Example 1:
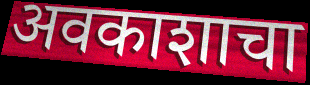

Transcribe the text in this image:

अवकाशाचा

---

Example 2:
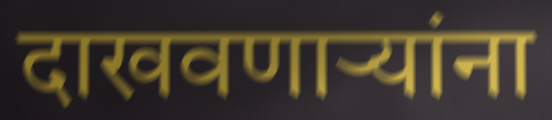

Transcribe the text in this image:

दाखवणाऱ्यांना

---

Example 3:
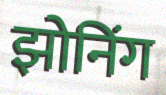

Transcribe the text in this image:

झोनिंग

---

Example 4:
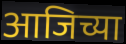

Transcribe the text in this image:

आजिच्या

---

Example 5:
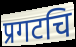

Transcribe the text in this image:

प्रगटचि